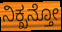
ನಿಕ್ಖನ್ತೋ